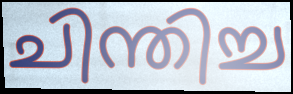
ചിന്തിച്ച